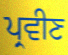
ਪ੍ਰਵੀਣ